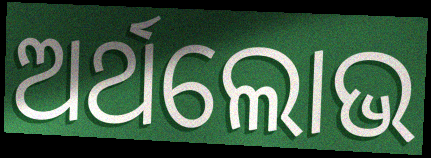
ଅର୍ଥଲୋଭ